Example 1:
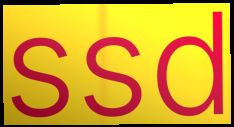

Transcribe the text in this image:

ssd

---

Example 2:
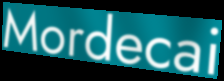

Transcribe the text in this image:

Mordecai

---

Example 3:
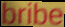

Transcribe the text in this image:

bribe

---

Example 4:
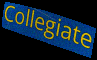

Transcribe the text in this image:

Collegiate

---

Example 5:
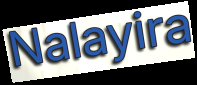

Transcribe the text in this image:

Nalayira